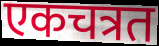
एकचत्रत